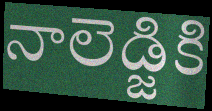
నాలెడ్జికి